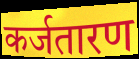
कर्जतारण